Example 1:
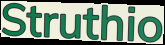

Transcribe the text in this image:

Struthio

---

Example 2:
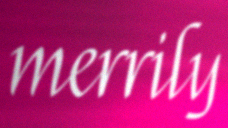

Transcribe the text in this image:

merrily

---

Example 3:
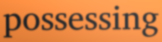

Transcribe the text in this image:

possessing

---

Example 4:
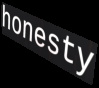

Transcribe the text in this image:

honesty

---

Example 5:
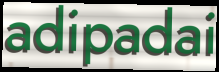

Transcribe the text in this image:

adipadai